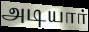
அடியார்